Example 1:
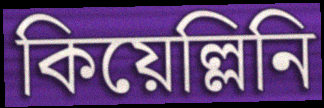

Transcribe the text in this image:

কিয়েল্লিনি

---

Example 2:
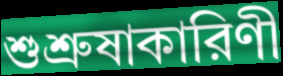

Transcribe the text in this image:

শুশ্রুষাকারিণী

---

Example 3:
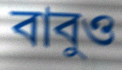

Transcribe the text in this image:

বাবুও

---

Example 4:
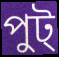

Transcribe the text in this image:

পুট্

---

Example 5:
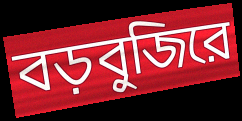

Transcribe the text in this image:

বড়বুজিরে